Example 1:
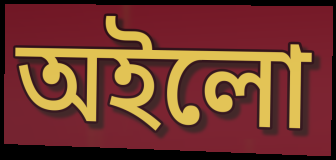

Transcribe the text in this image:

অইলো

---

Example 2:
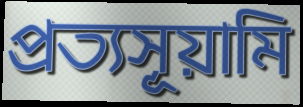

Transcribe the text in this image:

প্রত্যসূয়ামি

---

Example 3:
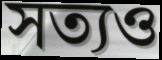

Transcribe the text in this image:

সত্যও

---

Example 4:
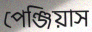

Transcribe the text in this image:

পেঞ্জিয়াস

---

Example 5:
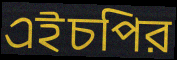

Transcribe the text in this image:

এইচপির